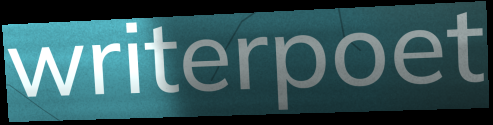
writerpoet